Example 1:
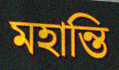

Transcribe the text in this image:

মহান্তি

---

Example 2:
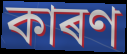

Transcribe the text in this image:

কাৰণ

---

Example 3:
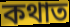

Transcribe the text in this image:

কথাত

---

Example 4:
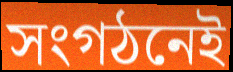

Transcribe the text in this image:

সংগঠনেই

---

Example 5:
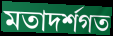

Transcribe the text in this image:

মতাদৰ্শগত